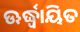
ଊର୍ଦ୍ଧ୍ୱାୟିତ